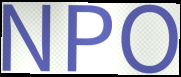
NPO